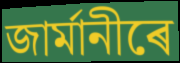
জাৰ্মানীৰে